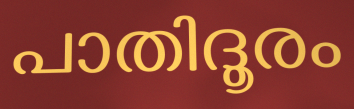
പാതിദൂരം